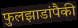
फुलझाडांपैकी